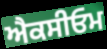
ਐਕਸੀਓਮ